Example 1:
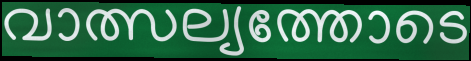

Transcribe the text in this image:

വാത്സല്യത്തോടെ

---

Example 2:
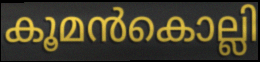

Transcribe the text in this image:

കൂമൻകൊല്ലി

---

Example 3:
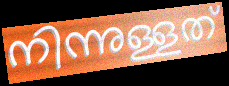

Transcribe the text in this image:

നിന്നുള്ളത്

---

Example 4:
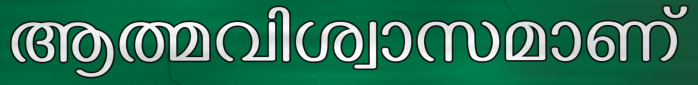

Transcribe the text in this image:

ആത്മവിശ്വാസമാണ്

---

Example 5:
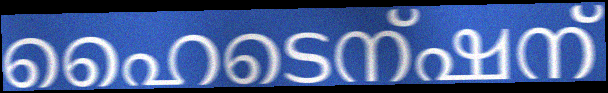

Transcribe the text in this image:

ഹൈടെന്ഷന്